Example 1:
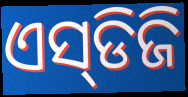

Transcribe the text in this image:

ଏସ୍‌ଡିଜି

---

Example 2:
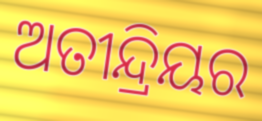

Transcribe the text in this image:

ଅତୀନ୍ଦ୍ରିୟର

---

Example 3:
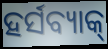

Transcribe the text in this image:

ହର୍ସବ୍ୟାକ୍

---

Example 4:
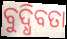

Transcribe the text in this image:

ବୁଦ୍ଧିବତା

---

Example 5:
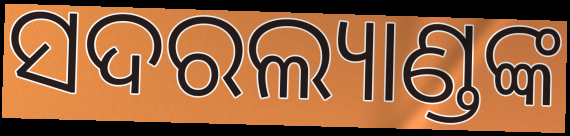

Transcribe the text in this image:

ସଦରଲ୍ୟାଣ୍ଡଙ୍କ